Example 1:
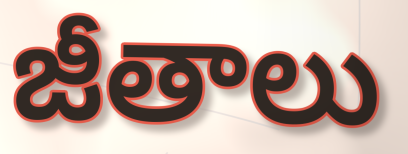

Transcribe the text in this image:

జీతాలు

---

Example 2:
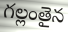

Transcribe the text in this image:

గల్లంతైన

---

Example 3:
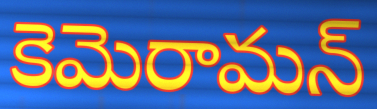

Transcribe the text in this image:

కెమెరామన్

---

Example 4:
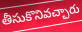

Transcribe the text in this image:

తీసుకొనివచ్చారు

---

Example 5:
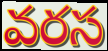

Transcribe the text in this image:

వరస